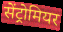
सेंट्रोमियर